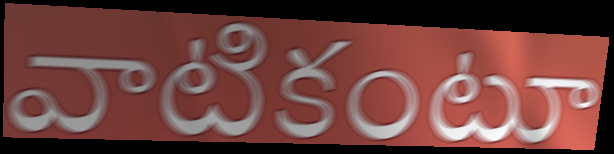
వాటికంటూ